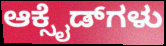
ಆಕ್ಸೈಡ್‌ಗಳು